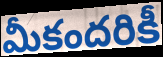
మీకందరికీ